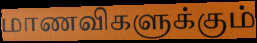
மாணவிகளுக்கும்